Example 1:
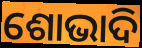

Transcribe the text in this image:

ଶୋଭାଦି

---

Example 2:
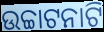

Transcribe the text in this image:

ଉଚ୍ଚାଟନାଟି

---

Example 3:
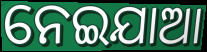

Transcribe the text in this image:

ନେଇଯାଆ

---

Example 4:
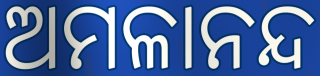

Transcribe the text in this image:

ଅମଳାନନ୍ଦ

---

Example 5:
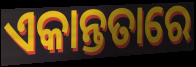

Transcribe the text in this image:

ଏକାନ୍ତତାରେ